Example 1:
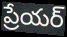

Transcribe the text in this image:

ప్రేయర్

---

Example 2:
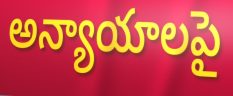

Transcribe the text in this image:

అన్యాయాలపై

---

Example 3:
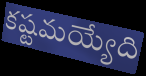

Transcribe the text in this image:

కష్టమయ్యేది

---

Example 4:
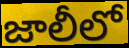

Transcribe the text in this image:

జాలీలో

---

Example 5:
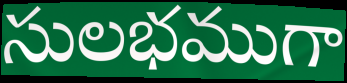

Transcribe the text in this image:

సులభముగా